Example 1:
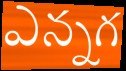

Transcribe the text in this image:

ఎన్నగ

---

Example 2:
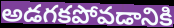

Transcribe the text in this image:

అడగకపోవడానికి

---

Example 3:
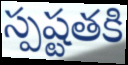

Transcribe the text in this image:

స్పష్టతకి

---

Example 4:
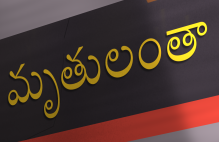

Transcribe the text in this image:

మృతులంతా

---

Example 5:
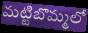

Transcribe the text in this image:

మట్టిబొమ్మలో